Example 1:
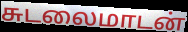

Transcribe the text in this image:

சுடலைமாடன்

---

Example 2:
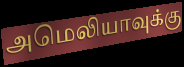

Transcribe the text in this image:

அமெலியாவுக்கு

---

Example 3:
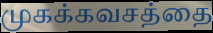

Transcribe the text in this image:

முகக்கவசத்தை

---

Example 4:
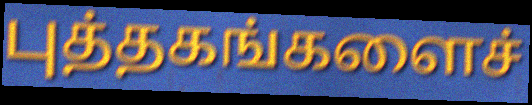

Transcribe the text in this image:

புத்தகங்களைச்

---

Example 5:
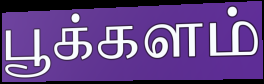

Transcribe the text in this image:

பூக்களம்